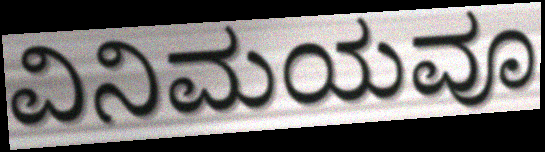
ವಿನಿಮಯವೂ